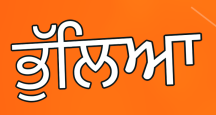
ਭੁੱਲਿਆ